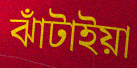
ঝাঁটাইয়া